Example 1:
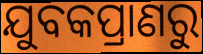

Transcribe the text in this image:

ଯୁବକପ୍ରାଣରୁ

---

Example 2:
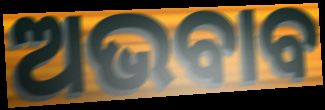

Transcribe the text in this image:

ଅଭବାବ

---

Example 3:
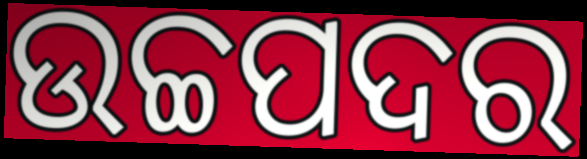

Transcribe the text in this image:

ଉଚ୍ଚପଦର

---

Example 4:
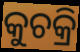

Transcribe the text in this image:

କୁଚକ୍ରି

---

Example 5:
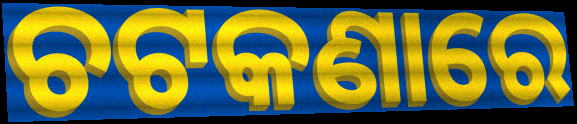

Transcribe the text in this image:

ଚଟକଣାରେ